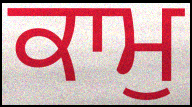
ਕਾਮੁ